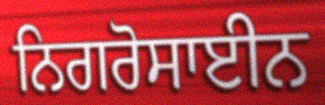
ਨਿਗਰੋਸਾਈਨ